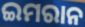
ଇମରାନ